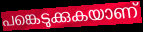
പങ്കെടുക്കുകയാണ്